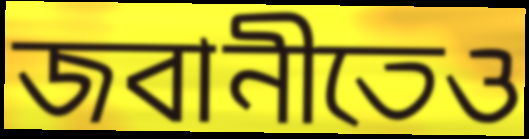
জবানীতেও